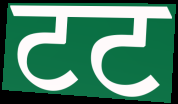
टट